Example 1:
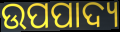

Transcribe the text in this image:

ଉପପାଦ୍ୟ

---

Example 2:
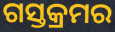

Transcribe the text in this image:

ଗସ୍ତକ୍ରମର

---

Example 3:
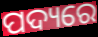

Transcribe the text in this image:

ପଦ୍ୟରେ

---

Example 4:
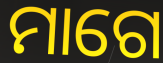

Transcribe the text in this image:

ମାଗେ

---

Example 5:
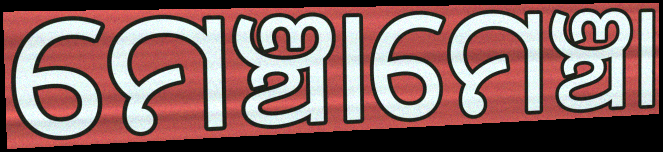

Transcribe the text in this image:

ମେଞ୍ଚାମେଞ୍ଚା